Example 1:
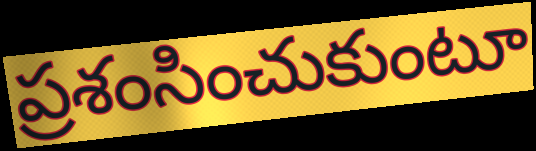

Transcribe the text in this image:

ప్రశంసించుకుంటూ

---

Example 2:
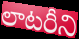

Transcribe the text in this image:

లాటరీని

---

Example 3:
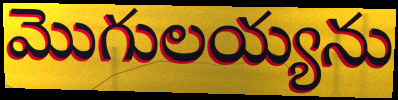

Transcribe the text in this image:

మొగులయ్యను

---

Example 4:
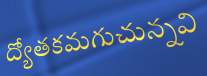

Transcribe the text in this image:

ద్యోతకమగుచున్నవి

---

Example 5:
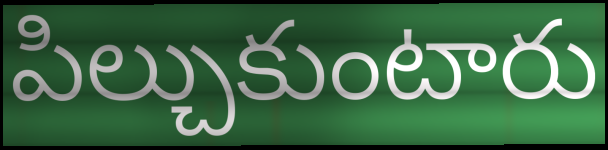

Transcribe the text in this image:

పిల్చుకుంటారు